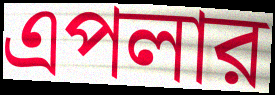
এপলার